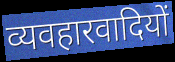
व्यवहारवादियों